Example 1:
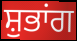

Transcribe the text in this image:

ਸ਼ੁਭਾਂਗ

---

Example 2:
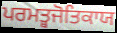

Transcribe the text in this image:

ਪਰਮਤ੍ਥਜੋਤਿਕਾਯ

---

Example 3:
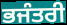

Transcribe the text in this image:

ਭਜੰਤਰੀ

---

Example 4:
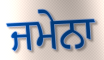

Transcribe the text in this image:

ਜਮੇਨਾ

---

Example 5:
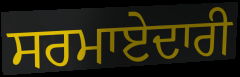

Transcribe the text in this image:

ਸਰਮਾਏਦਾਰੀ